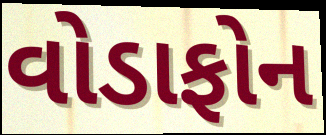
વોડાફોન